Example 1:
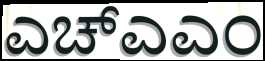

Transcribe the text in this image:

ಎಚ್ಎಎಂ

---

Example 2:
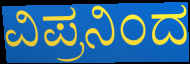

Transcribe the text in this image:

ವಿಪ್ರನಿಂದ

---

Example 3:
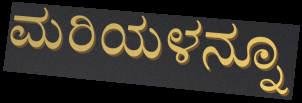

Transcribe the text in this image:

ಮರಿಯಳನ್ನೂ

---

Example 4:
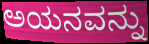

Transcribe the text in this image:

ಅಯನವನ್ನು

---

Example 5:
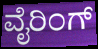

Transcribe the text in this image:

ವೈರಿಂಗ್